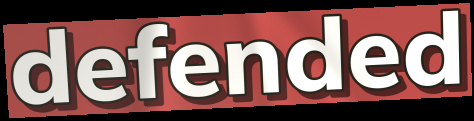
defended